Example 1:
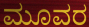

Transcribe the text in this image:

ಮೂವರ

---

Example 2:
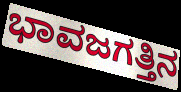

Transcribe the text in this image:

ಭಾವಜಗತ್ತಿನ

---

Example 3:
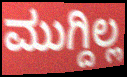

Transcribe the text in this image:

ಮುಗ್ದಿಲ್ಲ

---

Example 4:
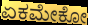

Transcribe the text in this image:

ಏಕಮೇಕೋ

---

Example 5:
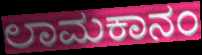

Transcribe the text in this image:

ಲಾಮಕಾನಂ